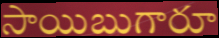
సాయిబుగారూ